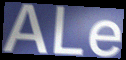
ALe